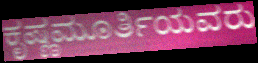
ಕೃಷ್ಣಮೂರ್ತಿಯವರು